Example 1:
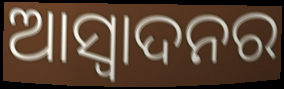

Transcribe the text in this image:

ଆସ୍ବାଦନର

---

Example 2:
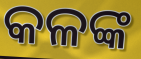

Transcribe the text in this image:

କଳଙ୍କ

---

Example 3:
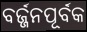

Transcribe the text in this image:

ବର୍ଜ୍ଜନପୂର୍ବକ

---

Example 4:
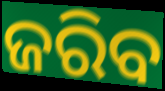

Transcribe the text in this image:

ଜରିବ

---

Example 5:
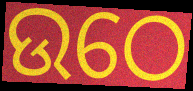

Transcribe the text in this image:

ଉଠେ